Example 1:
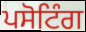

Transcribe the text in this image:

ਪਸੋਟਿੰਗ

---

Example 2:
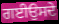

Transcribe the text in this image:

ਗਈਉਸਦੇ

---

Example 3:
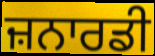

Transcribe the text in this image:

ਜ਼ਨਾਰਡੀ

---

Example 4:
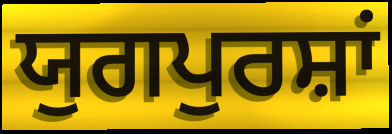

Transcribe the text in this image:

ਯੁਗਪੁਰਸ਼ਾਂ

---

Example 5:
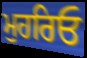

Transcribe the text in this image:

ਮੁਹਰਿਓ